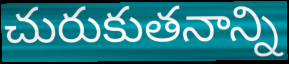
చురుకుతనాన్ని